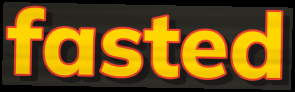
fasted